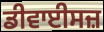
ਡੀਵਾਈਸਜ਼